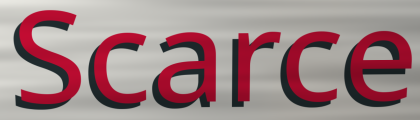
Scarce